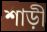
শাড়ী